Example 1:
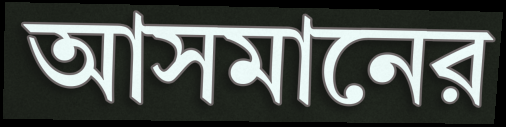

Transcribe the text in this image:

আসমানের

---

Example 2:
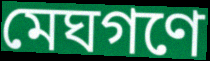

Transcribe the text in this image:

মেঘগণে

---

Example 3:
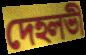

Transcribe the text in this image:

দেহলভী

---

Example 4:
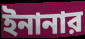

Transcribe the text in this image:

ইনানার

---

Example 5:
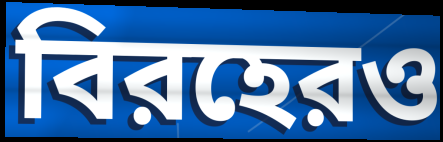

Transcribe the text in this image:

বিরহেরও